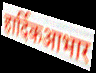
हार्दिकआभार